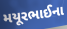
મયૂરભાઈના